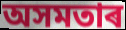
অসমতাৰ